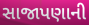
સાજાપણાની